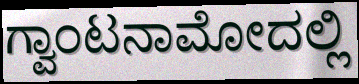
ಗ್ವಾಂಟನಾಮೋದಲ್ಲಿ